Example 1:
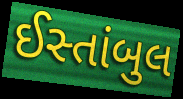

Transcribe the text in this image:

ઈસ્તાંબુલ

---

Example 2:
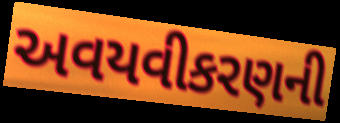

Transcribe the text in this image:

અવયવીકરણની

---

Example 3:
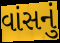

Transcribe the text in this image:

વાંસનું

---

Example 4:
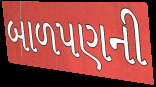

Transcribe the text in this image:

બાળપણની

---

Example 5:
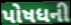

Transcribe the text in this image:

પોષધની